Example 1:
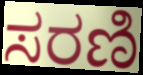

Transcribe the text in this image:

ಸರಣಿ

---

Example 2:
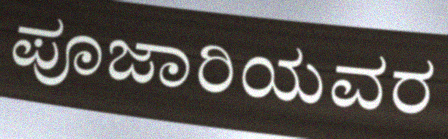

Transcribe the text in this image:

ಪೂಜಾರಿಯವರ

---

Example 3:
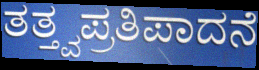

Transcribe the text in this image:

ತತ್ತ್ವಪ್ರತಿಪಾದನೆ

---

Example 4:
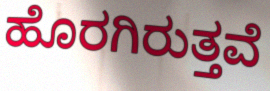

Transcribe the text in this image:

ಹೊರಗಿರುತ್ತವೆ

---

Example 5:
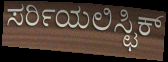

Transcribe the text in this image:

ಸರ್ರಿಯಲಿಸ್ಟಿಕ್